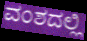
ವಂಶದಲ್ಲಿ